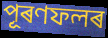
পূৰণফলৰ